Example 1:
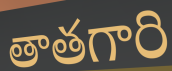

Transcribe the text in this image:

తాతగారి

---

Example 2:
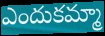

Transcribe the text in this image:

ఎందుకమ్మా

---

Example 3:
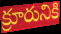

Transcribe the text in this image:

క్రూరునికి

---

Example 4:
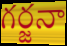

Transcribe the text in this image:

గర్జనా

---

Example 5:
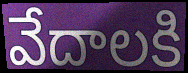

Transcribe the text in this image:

వేదాలకి